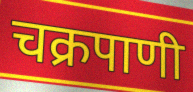
चक्रपाणी